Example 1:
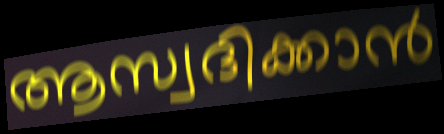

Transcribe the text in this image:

ആസ്വദിക്കാൻ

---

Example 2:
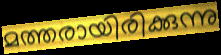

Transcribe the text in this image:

മത്തരായിരിക്കുന്നു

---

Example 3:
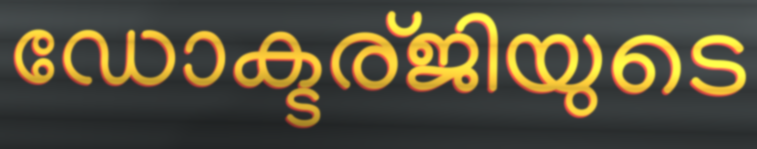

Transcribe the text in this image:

ഡോക്ടര്ജിയുടെ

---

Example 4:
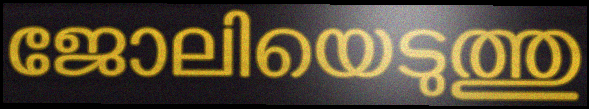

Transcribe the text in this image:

ജോലിയെടുത്തു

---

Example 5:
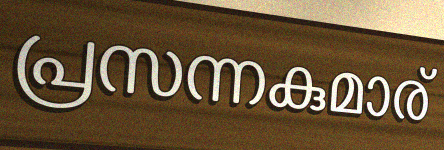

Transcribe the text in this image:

പ്രസന്നകുമാര്